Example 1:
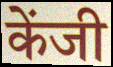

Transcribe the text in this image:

केंजी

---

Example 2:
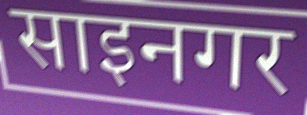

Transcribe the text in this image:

साइनगर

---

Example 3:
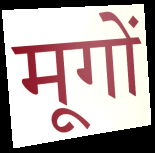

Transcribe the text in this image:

मूगों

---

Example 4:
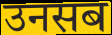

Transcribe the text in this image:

उनसब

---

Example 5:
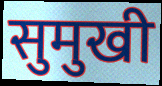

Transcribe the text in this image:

सुमुखी